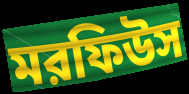
মরফিউস